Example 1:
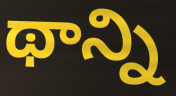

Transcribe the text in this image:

థాన్ని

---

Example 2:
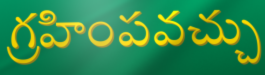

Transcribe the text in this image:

గ్రహింపవచ్చు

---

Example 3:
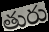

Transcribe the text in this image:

తురు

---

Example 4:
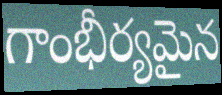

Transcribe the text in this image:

గాంభీర్యమైన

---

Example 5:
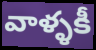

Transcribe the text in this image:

వాళ్ళకీ